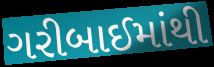
ગરીબાઈમાંથી